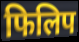
फिलिप